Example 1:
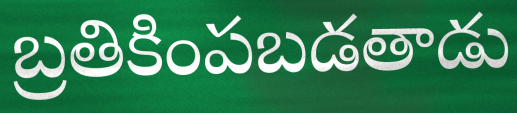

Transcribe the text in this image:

బ్రతికింపబడతాడు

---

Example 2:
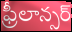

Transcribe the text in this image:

ఫ్రీలాన్సర్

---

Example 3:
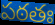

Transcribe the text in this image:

పఠతః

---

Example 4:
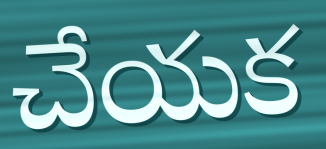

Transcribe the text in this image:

చేయక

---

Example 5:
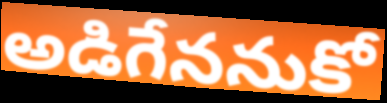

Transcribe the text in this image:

అడిగేననుకో